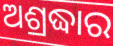
ଅଶ୍ରଦ୍ଧାର